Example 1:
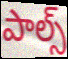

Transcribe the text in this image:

పాల్స్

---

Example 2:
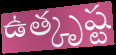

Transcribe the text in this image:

ఉత్కృష్ట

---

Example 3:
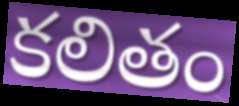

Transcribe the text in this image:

కలితం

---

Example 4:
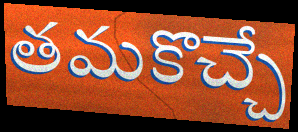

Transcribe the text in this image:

తమకొచ్చే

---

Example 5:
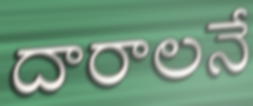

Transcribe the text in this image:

దారాలనే